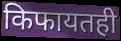
किफायतही